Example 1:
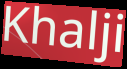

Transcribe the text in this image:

Khalji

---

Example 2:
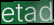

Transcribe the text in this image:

etad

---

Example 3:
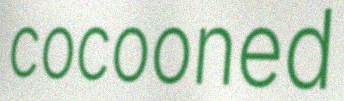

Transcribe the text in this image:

cocooned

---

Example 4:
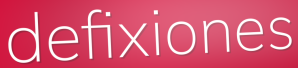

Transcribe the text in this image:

defixiones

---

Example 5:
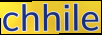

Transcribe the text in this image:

chhile